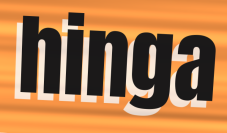
hinga